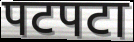
पटपटा